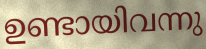
ഉണ്ടായിവന്നു